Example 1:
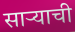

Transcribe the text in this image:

सार्‍याची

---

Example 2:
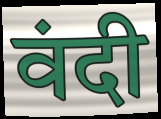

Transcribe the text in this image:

वंदी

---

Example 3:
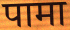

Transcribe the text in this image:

पामा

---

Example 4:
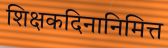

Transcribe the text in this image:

शिक्षकदिनानिमित्त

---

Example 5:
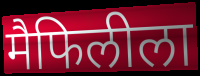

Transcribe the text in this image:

मैफिलीला